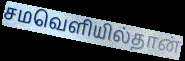
சமவெளியில்தான்